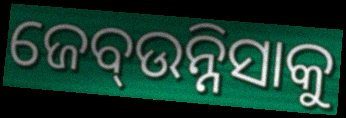
ଜେବ୍ଉନ୍ନିସାକୁ